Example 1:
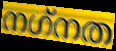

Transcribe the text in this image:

നഗ്‌നത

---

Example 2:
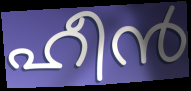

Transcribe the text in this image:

ഹീൻ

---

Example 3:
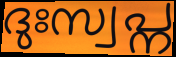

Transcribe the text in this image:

ദുഃസ്വപ്ന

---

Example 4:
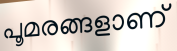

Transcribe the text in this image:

പൂമരങ്ങളാണ്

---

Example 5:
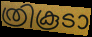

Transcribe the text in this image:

ത്രികൂടാ